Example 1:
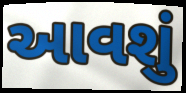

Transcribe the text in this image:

આવશું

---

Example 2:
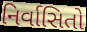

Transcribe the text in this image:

નિર્વાસિતો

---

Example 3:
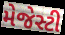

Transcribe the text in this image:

મેજેસ્ટી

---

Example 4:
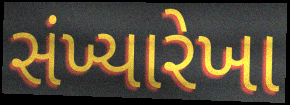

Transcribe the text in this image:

સંખ્યારેખા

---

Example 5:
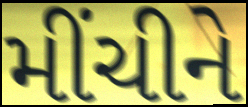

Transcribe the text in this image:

મીંચીને